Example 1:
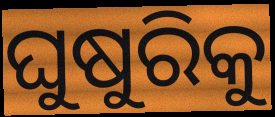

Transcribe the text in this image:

ଘୁଷୁରିକୁ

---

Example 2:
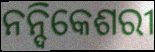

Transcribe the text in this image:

ନନ୍ଦିକେଶରୀ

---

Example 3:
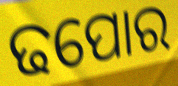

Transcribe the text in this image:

ଢପୋର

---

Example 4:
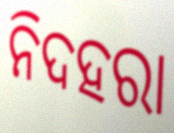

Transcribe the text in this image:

ନିଦହରା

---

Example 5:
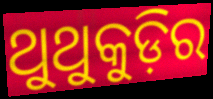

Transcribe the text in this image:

ଥୁଥୁକୁଡ଼ିର